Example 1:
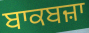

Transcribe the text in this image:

ਬਾਕਬਜ਼ਾ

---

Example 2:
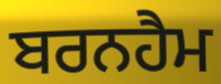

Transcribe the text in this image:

ਬਰਨਹੈਮ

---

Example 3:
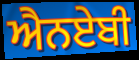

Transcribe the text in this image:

ਐਨਏਬੀ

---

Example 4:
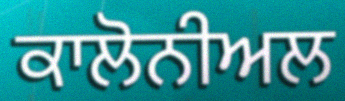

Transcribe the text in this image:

ਕਾਲੋਨੀਅਲ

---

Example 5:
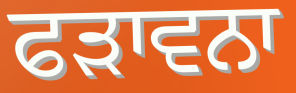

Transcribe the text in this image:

ਫੜਾਵਨਾ